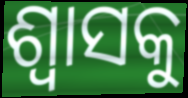
ଶ୍ଵାସକୁ